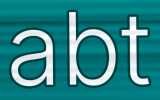
abt